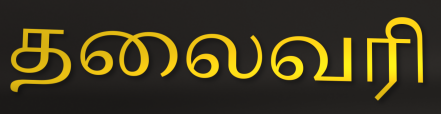
தலைவரி